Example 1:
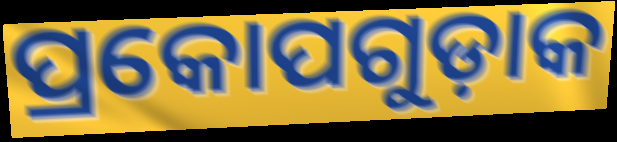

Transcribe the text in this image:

ପ୍ରକୋପଗୁଡ଼ାକ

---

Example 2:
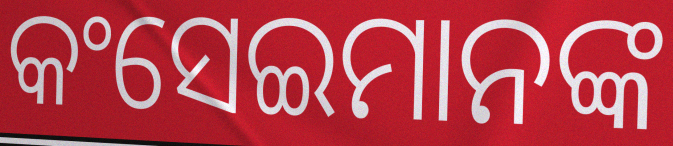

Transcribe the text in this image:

କଂସେଇମାନଙ୍କ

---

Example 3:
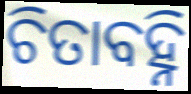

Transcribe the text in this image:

ଚିତାବହ୍ନି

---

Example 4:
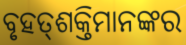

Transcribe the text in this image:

ବୃହତ୍‍ଶକ୍ତିମାନଙ୍କର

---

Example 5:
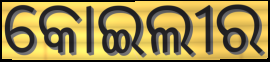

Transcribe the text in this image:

କୋଇଲୀର